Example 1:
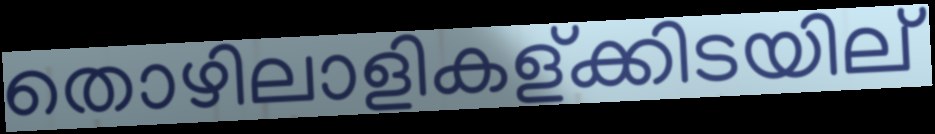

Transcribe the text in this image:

തൊഴിലാളികള്ക്കിടയില്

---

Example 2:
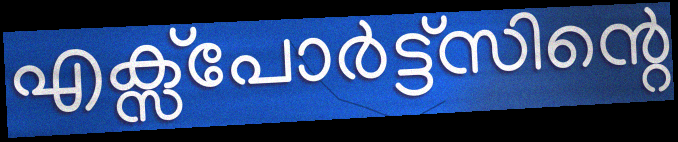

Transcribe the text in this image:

എക്സ്പോർട്ട്സിന്റെ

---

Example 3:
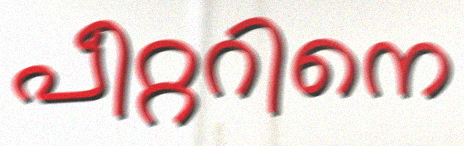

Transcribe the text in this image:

പീറ്ററിനെ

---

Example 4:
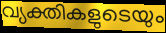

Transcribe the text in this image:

വ്യക്തികളുടെയും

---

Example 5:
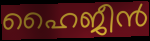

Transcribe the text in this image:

ഹൈജീൻ